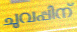
ചുവപ്പിന്